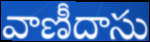
వాణీదాసు